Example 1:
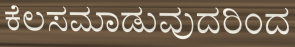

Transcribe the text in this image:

ಕೆಲಸಮಾಡುವುದರಿಂದ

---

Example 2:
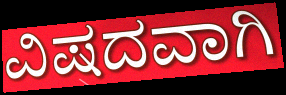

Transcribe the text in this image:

ವಿಷದವಾಗಿ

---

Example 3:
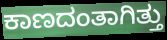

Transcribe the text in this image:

ಕಾಣದಂತಾಗಿತ್ತು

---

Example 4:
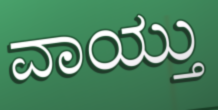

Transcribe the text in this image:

ವಾಯ್ತು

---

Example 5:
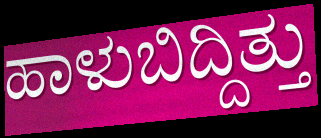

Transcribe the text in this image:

ಹಾಳುಬಿದ್ದಿತ್ತು